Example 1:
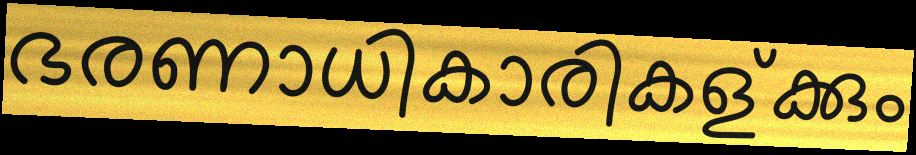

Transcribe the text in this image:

ഭരണാധികാരികള്ക്കും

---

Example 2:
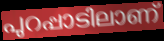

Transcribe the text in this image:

പുറപ്പാടിലാണ്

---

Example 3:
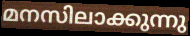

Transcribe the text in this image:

മനസിലാക്കുന്നു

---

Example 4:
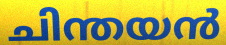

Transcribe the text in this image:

ചിന്തയൻ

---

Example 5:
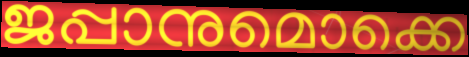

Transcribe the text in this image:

ജപ്പാനുമൊക്കെ